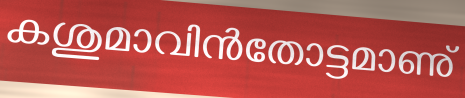
കശുമാവിൻതോട്ടമാണു്